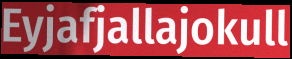
Eyjafjallajokull